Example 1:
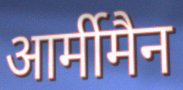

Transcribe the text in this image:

आर्मीमैन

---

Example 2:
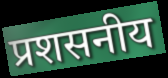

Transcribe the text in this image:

प्रशसनीय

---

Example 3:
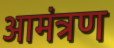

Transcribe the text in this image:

आमंत्रण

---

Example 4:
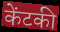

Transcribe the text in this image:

केंटकी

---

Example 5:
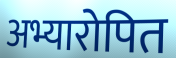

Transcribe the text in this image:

अभ्यारोपित